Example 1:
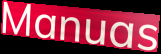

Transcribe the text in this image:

Manuas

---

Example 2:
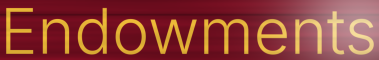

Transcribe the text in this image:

Endowments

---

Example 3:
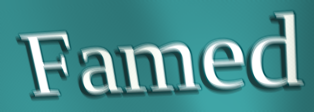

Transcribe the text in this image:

Famed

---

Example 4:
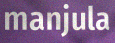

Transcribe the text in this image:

manjula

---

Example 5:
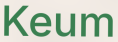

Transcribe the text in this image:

Keum